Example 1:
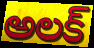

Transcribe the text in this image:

అలక్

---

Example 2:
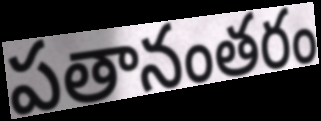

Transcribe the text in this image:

పతానంతరం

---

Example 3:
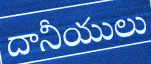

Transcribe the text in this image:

దానీయులు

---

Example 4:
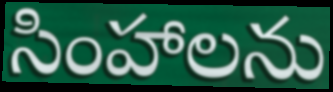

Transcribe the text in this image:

సింహాలను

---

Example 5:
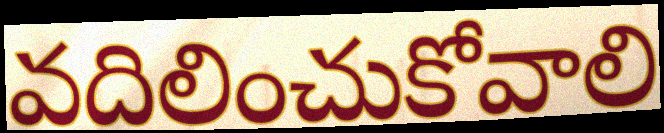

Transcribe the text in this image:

వదిలించుకోవాలి